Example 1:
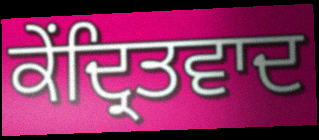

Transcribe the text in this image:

ਕੇਂਦ੍ਰਿਤਵਾਦ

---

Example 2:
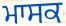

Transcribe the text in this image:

ਮਾਸਕ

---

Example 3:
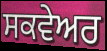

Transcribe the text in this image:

ਸਕਵੇਅਰ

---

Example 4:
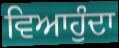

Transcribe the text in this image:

ਵਿਆਹੁੰਦਾ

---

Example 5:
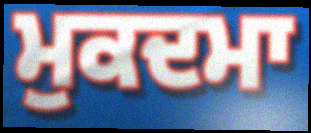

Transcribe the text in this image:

ਮੁਕਦਮਾ